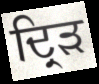
ਦ੍ਰਿੜ